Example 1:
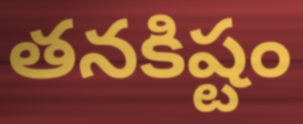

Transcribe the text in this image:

తనకిష్టం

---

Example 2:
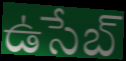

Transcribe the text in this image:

ఉసేబ్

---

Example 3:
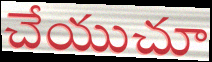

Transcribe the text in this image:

చేయుచూ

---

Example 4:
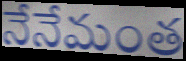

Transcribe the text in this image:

నేనేమంత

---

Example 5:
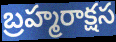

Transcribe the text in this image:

బ్రహ్మరాక్షస